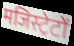
मजिस्ट्रेटों